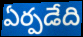
ఏర్పడేది